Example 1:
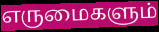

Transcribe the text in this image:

எருமைகளும்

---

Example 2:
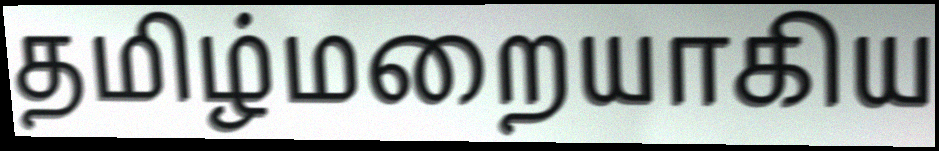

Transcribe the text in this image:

தமிழ்மறையாகிய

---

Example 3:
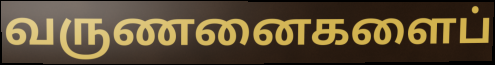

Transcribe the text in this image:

வருணனைகளைப்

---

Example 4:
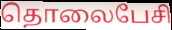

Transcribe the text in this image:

தொலைபேசி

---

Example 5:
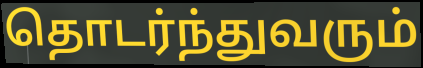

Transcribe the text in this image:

தொடர்ந்துவரும்